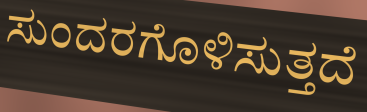
ಸುಂದರಗೊಳಿಸುತ್ತದೆ